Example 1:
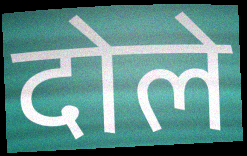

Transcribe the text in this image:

दोले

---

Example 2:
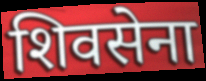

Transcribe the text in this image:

शिवसेना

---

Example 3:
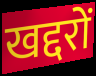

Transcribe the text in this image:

खद्दरों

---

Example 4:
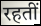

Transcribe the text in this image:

रहतीं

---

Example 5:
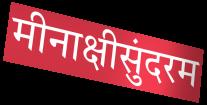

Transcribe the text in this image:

मीनाक्षीसुंदरम